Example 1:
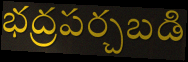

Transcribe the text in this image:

భద్రపర్చబడి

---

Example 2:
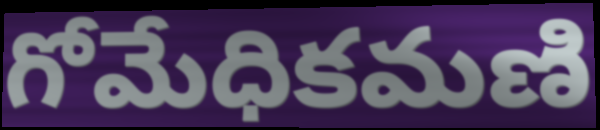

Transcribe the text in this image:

గోమేధికమణి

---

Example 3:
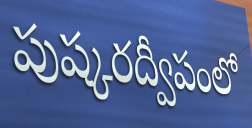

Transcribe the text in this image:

పుష్కరద్వీపంలో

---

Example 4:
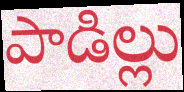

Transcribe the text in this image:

పాడిల్లు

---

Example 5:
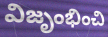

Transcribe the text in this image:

విజృంభించి